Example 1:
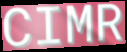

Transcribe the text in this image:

CIMR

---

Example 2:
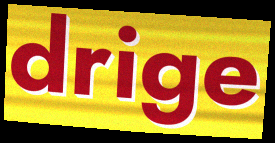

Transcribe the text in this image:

drige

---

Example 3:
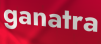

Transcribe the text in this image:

ganatra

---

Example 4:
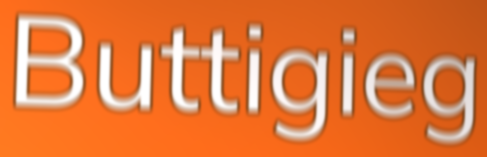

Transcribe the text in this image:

Buttigieg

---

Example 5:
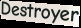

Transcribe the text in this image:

Destroyer